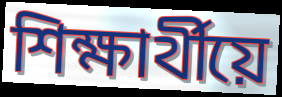
শিক্ষাৰ্থীয়ে